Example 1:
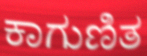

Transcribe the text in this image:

ಕಾಗುಣಿತ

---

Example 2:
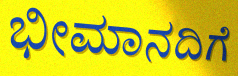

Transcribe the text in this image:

ಭೀಮಾನದಿಗೆ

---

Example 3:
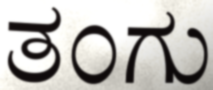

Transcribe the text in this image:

ತಂಗು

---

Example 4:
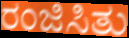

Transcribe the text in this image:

ರಂಜಿಸಿತು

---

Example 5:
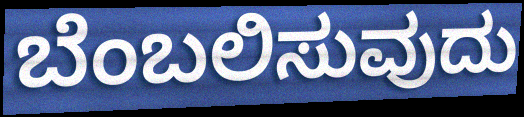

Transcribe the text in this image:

ಬೆಂಬಲಿಸುವುದು